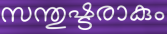
സന്തുഷ്ടരാകും